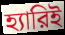
হ্যারিই